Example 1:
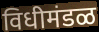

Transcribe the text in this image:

विधीमंडळ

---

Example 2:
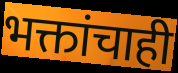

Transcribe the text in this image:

भक्तांचाही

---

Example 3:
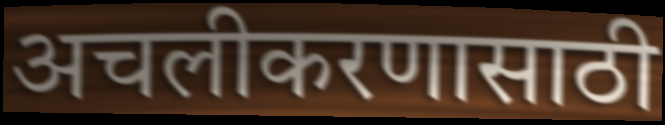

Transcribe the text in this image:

अचलीकरणासाठी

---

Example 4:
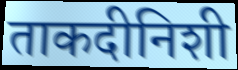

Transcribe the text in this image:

ताकदीनिशी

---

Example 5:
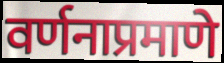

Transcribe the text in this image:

वर्णनाप्रमाणे